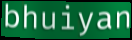
bhuiyan